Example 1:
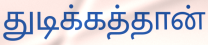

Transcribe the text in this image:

துடிக்கத்தான்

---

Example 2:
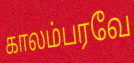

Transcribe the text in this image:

காலம்பரவே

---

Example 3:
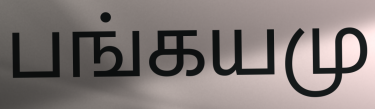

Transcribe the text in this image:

பங்கயமு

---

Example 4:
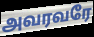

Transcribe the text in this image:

அவரவரே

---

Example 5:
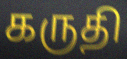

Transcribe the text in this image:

கருதி